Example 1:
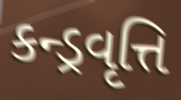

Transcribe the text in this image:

કન્ડ્રવૃત્તિ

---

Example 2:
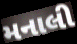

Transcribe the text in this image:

મનાલી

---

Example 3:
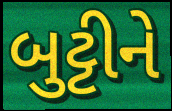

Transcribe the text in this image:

બુટ્ટીને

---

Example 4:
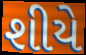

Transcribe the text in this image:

શીયે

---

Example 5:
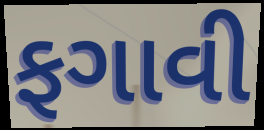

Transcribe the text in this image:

ફગાવી